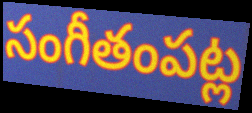
సంగీతంపట్ల